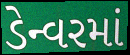
ડેન્વરમાં